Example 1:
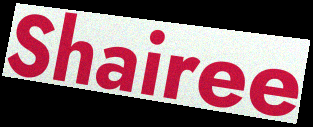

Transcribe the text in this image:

Shairee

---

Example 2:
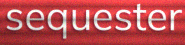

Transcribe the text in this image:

sequester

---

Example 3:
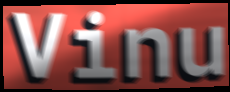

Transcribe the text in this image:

Vinu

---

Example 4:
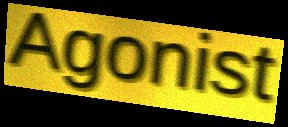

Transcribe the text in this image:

Agonist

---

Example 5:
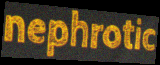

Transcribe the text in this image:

nephrotic